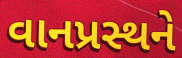
વાનપ્રસ્થને